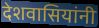
देशवासियांनी